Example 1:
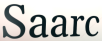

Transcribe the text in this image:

Saarc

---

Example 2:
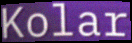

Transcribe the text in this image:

Kolar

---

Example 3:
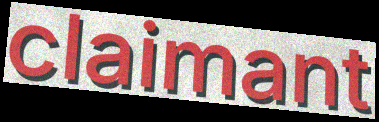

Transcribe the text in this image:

claimant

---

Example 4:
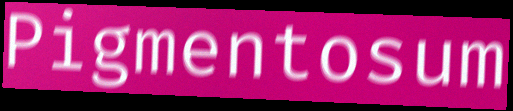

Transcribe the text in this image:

Pigmentosum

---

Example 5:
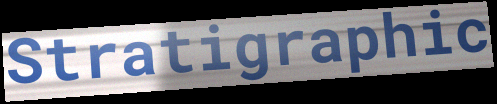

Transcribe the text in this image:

Stratigraphic